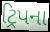
ટ્રિપના